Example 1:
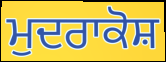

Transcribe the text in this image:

ਮੁਦਰਾਕੋਸ਼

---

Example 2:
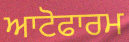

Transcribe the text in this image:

ਆਟੋਫਾਰਮ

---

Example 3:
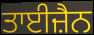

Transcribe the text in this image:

ਤਾਈਜ਼ੈਨ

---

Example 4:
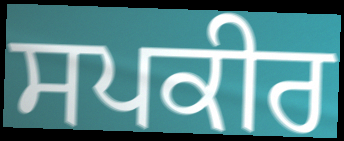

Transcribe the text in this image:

ਸਪਕੀਰ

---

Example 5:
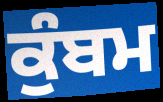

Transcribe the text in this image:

ਕੁੰਬਮ